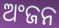
ଅଂଜନ